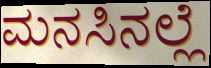
ಮನಸಿನಲ್ಲೆ